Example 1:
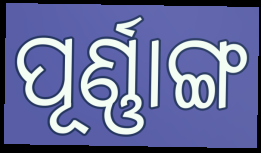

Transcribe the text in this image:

ପୂର୍ଣ୍ଣାଙ୍ଗ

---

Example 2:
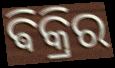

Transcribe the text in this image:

ଵିକ୍ରିର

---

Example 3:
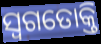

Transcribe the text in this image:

ସ୍ୱଗତୋକ୍ତି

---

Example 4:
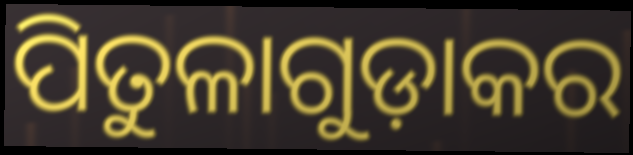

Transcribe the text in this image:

ପିତୁଳାଗୁଡ଼ାକର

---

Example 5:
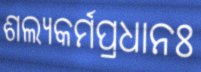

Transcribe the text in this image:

ଶଲ୍ୟକର୍ମପ୍ରଧାନଃ